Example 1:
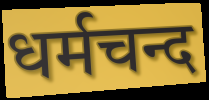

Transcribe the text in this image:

धर्मचन्द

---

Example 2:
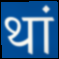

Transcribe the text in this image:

थां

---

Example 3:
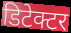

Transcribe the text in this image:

डिटेक्टर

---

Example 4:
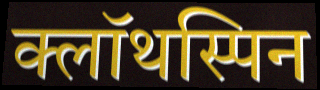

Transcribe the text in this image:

क्लॉथस्पिन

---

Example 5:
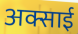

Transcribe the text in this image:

अक्साई